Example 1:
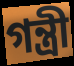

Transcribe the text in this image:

গন্ত্রী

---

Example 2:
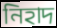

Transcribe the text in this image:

নিহাদ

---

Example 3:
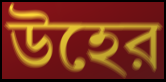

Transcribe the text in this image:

উহের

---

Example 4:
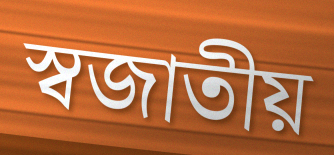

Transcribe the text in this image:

স্বজাতীয়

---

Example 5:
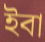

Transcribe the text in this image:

ইবা